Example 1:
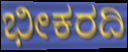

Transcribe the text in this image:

ಭೀಕರದಿ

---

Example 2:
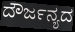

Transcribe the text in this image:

ದೌರ್ಜನ್ಯದ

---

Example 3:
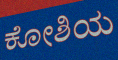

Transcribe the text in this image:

ಕೋಶಿಯ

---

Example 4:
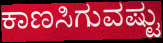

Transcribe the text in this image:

ಕಾಣಸಿಗುವಷ್ಟು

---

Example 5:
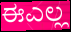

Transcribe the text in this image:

ಈಎಲ್ಲ